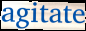
agitate